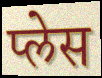
प्लेस